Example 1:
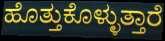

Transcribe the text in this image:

ಹೊತ್ತುಕೊಳ್ಳುತ್ತಾರೆ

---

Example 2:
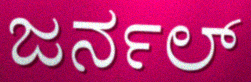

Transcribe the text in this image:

ಜರ್ನಲ್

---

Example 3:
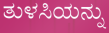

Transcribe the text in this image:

ತುಳಸಿಯನ್ನು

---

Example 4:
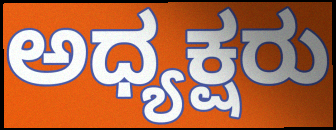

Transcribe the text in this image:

ಅಧ್ಯಕ್ಷರು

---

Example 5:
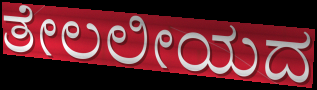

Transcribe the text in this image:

ತೇಲಲೀಯದ